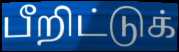
பீறிட்டுக்